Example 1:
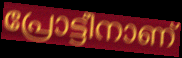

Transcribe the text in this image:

പ്രോട്ടീനാണ്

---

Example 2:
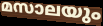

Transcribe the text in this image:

മസാലയും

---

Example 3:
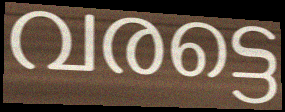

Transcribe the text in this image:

വരട്ടെ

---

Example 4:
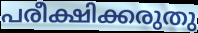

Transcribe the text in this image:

പരീക്ഷിക്കരുതു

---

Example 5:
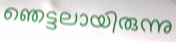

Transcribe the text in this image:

ഞെട്ടലായിരുന്നു